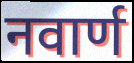
नवार्ण